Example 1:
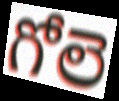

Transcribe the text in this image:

గోలె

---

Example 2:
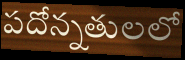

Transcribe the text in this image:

పదోన్నతులలో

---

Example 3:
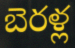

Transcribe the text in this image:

బెరళ్ల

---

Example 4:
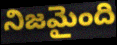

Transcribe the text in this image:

నిజమైంది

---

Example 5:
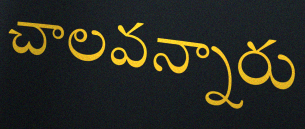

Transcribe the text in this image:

చాలవన్నారు